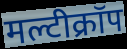
मल्टीक्रॉप